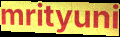
mrityuni